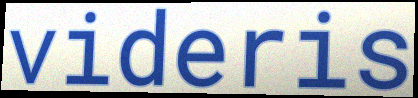
videris